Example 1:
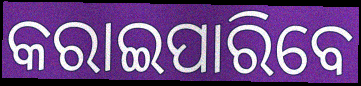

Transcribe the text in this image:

କରାଇପାରିବେ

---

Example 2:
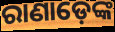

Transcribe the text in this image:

ରାଣାଡ଼େଙ୍କ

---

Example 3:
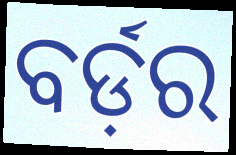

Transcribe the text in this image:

ବର୍ଡ଼ର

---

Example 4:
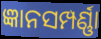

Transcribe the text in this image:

ଜ୍ଞାନସମ୍ପର୍ଣ୍ଣା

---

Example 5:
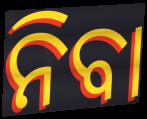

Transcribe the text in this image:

ନିବା